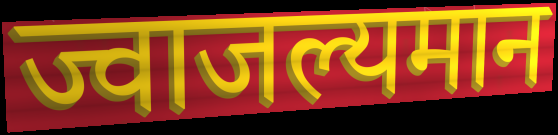
ज्वाजल्यमान